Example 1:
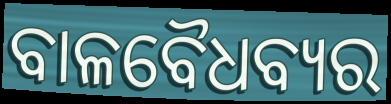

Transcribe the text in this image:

ବାଳବୈଧବ୍ୟର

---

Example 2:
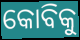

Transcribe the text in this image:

କୋବିକୁ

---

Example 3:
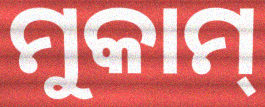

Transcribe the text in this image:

ମୁକାମ୍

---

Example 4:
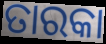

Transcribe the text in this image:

ତାରକା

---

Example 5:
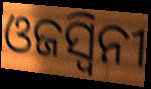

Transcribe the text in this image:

ଓଜସ୍ଵିନୀ